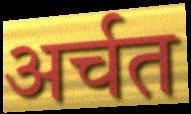
अर्चत